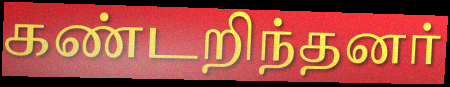
கண்டறிந்தனர்